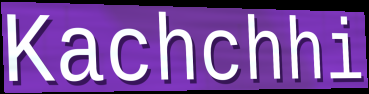
Kachchhi